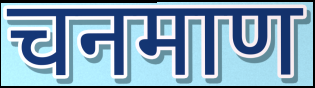
चनमाण